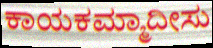
ಕಾಯಕಮ್ಮಾದೀಸು